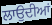
ਲਾਉਦੀਆਂ